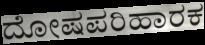
ದೋಷಪರಿಹಾರಕ